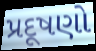
પ્રદૂષણો